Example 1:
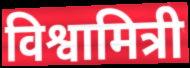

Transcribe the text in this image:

विश्वामित्री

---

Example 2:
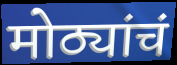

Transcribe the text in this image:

मोठ्यांचं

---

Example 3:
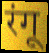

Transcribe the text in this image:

रंगू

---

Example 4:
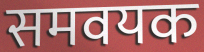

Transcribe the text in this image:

समवयक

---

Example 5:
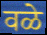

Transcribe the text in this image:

वळे